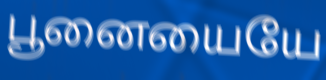
பூனையையே